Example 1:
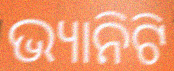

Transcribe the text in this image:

ଭ୍ୟାନିଟି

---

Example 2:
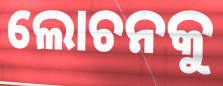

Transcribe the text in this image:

ଲୋଚନକୁ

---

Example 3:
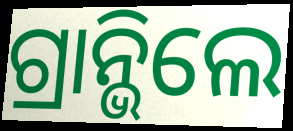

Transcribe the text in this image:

ଗ୍ରାନ୍ଭିଲେ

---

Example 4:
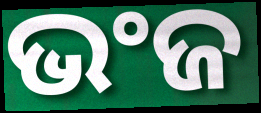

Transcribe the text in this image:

ଭଂଜ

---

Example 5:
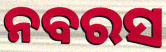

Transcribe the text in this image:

ନବରସ